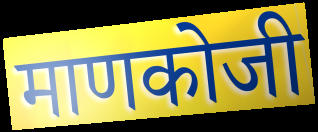
माणकोजी